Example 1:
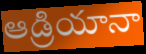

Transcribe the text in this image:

ఆడ్రియానా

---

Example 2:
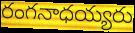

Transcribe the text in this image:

రంగనాధయ్యరు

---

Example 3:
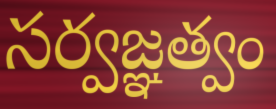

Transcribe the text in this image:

సర్వజ్ఞత్వం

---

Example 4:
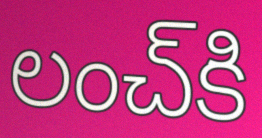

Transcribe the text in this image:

లంచ్‌కి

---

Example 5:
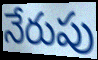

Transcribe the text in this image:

నేరుపు